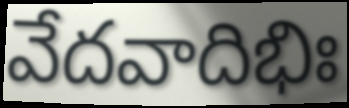
వేదవాదిభిః